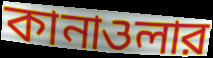
কানাওলার